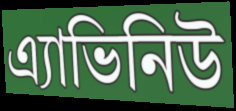
এ্যাভিনিউ